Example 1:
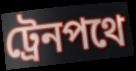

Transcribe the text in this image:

ট্রেনপথে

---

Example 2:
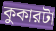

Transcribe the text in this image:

কুকারটা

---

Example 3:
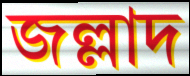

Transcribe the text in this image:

জল্লাদ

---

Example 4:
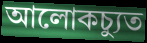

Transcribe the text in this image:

আলোকচ্যুত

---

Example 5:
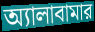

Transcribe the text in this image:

অ্যালাবামার